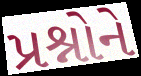
પ્રશ્નોને